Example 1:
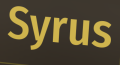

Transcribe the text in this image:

Syrus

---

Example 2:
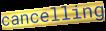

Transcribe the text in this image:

cancelling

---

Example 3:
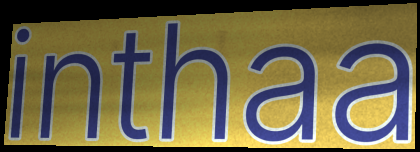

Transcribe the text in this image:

inthaa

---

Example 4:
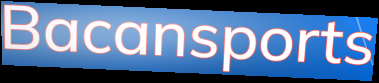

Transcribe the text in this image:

Bacansports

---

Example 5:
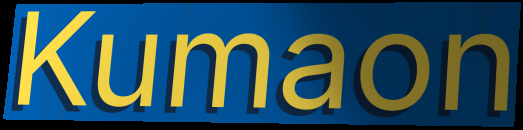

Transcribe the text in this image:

Kumaon